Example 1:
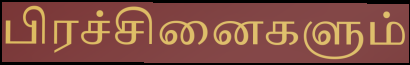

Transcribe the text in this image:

பிரச்சினைகளும்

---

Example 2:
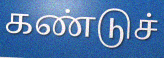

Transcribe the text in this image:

கண்டுச்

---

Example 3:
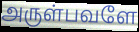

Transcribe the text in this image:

அருள்பவளே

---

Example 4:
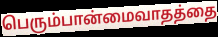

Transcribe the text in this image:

பெரும்பான்மைவாதத்தை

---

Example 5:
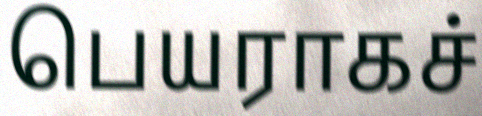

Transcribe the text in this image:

பெயராகச்